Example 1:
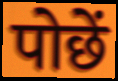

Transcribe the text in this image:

पोछें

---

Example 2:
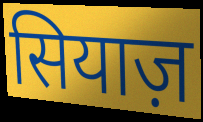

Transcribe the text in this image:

सियाज़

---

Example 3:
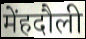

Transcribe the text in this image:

मेंहदौली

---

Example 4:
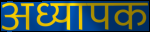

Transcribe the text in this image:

अध्यापक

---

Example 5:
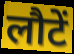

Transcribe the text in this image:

लौटें